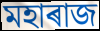
মহাৰাজ